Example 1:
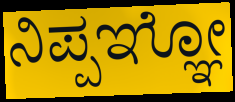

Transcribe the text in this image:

ನಿಪ್ಪಞ್ಞೋ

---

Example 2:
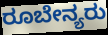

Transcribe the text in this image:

ರೂಬೇನ್ಯರು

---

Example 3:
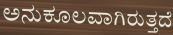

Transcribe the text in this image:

ಅನುಕೂಲವಾಗಿರುತ್ತದೆ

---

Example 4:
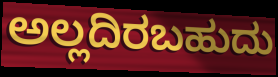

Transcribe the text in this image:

ಅಲ್ಲದಿರಬಹುದು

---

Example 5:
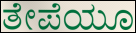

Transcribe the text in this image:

ತೇಪೆಯೂ